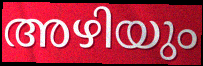
അഴിയും